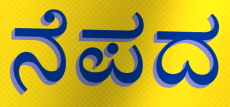
ನೆಪದ